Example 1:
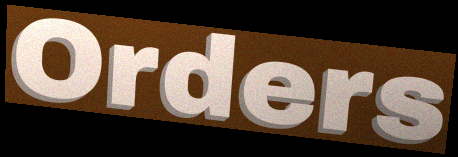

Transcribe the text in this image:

Orders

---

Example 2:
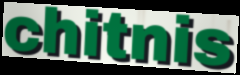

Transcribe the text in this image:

chitnis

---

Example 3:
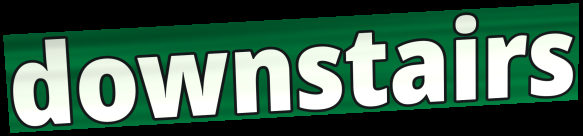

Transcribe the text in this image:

downstairs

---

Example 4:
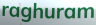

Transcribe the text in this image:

raghuram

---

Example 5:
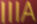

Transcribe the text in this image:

IIIA